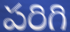
పరిగి